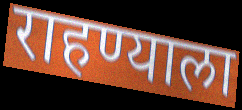
राहण्याला